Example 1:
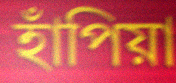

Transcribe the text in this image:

হাঁপিয়া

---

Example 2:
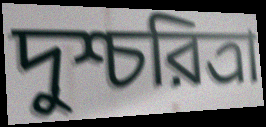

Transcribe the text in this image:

দুশ্চরিত্রা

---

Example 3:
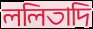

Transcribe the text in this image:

ললিতাদি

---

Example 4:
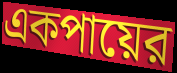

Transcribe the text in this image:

একপায়ের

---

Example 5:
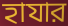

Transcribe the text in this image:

হাযার